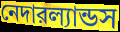
নেদারল্যান্ডস